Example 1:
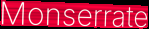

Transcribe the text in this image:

Monserrate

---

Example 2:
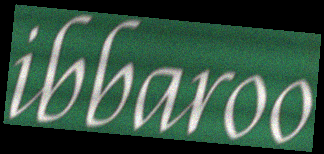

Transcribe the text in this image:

ibbaroo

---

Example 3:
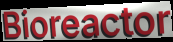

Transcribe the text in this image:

Bioreactor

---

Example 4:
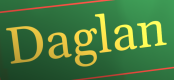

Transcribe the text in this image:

Daglan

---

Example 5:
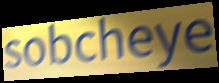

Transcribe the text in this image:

sobcheye